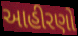
આહીરણો